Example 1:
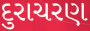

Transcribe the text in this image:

દુરાચરણ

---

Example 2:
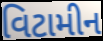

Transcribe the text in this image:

વિટામીન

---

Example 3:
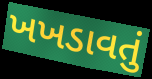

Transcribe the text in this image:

ખખડાવતું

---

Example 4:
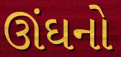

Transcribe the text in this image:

ઊંઘનો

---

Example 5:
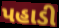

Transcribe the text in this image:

પહાડી